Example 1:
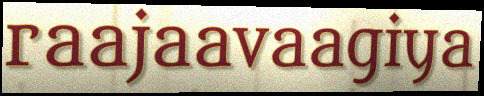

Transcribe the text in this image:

raajaavaagiya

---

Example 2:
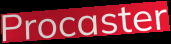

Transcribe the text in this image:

Procaster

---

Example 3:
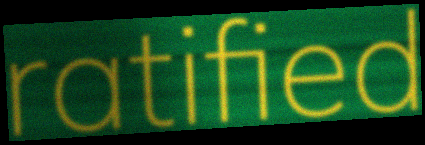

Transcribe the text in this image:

ratified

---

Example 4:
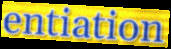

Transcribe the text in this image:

entiation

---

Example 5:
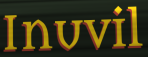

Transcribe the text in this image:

Inuvil